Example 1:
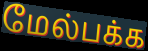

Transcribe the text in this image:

மேல்பக்க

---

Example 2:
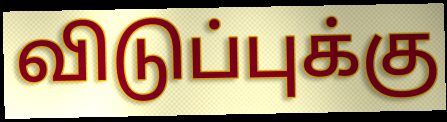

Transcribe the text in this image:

விடுப்புக்கு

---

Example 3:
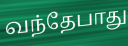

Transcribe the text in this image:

வந்தேபாது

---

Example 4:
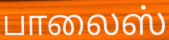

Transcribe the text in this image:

பாலைஸ்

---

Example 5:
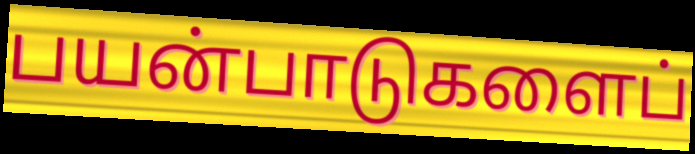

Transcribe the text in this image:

பயன்பாடுகளைப்